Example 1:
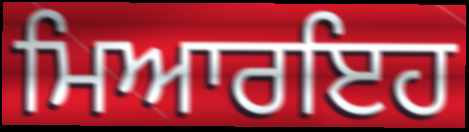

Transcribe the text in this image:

ਮਿਆਰਇਹ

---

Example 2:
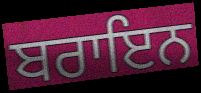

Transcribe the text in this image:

ਬਰਾਇਨ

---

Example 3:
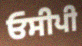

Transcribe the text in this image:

ਓਸੀਪੀ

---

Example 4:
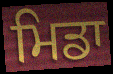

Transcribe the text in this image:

ਮਿਡਾ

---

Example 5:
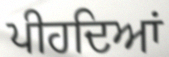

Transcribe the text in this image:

ਪੀਹਦਿਆਂ